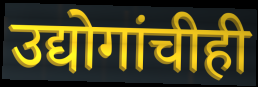
उद्योगांचीही